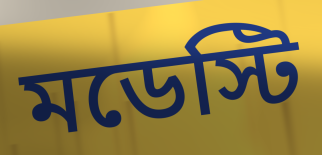
মডেস্টি